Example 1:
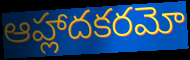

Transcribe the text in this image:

ఆహ్లాదకరమో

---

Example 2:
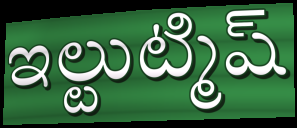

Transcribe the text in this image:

ఇల్టుట్మిష్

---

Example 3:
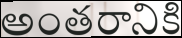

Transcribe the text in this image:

అంతరానికి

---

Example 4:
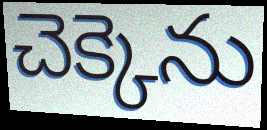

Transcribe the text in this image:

చెక్కెను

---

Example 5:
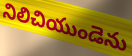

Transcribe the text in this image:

నిలిచియుండెను